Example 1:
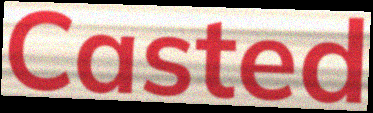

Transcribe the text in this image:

Casted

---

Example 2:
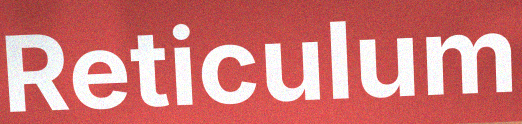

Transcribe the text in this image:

Reticulum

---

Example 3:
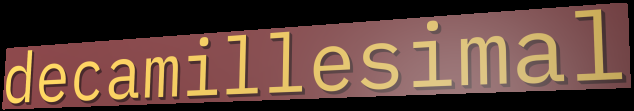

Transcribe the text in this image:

decamillesimal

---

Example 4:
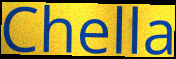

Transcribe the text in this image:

Chella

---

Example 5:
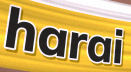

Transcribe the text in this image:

harai